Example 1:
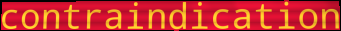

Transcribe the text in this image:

contraindication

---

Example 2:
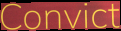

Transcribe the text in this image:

Convict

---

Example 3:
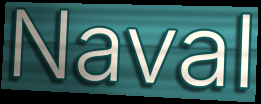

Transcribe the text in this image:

Naval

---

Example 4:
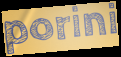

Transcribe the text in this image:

porini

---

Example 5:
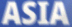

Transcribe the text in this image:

ASIA